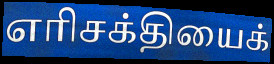
எரிசக்தியைக்